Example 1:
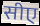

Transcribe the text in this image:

सीए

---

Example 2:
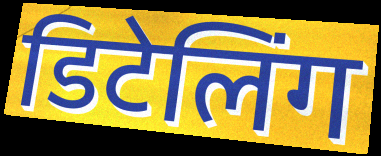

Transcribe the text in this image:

डिटेलिंग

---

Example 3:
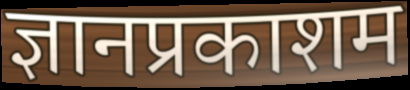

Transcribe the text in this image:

ज्ञानप्रकाशम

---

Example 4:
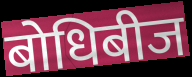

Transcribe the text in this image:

बोधिबीज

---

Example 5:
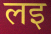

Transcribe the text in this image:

लइ